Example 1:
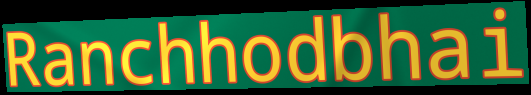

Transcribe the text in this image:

Ranchhodbhai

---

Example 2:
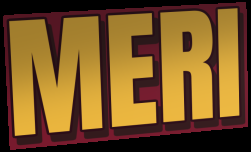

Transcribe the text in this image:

MERI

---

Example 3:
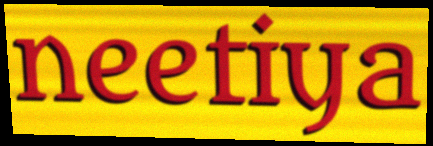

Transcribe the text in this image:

neetiya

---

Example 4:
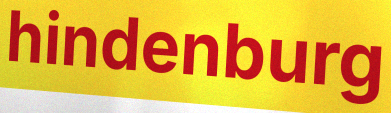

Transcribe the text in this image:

hindenburg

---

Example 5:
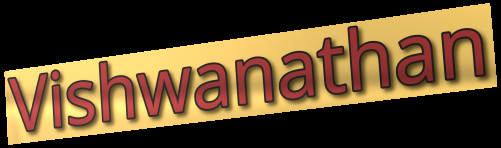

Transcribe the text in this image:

Vishwanathan